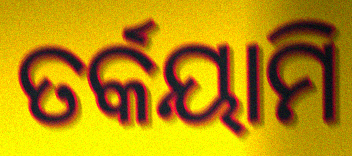
ତର୍କୟାମି